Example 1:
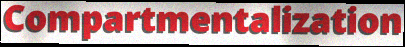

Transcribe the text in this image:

Compartmentalization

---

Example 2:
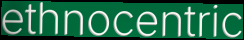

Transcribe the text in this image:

ethnocentric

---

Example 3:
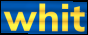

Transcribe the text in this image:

whit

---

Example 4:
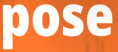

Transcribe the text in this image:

pose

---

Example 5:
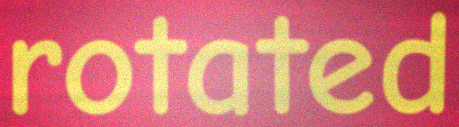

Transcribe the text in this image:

rotated